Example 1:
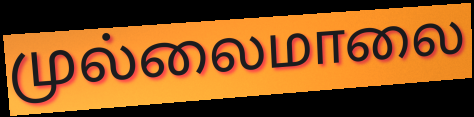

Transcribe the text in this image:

முல்லைமாலை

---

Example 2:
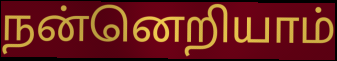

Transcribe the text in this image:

நன்னெறியாம்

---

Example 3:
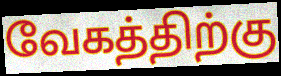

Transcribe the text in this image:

வேகத்திற்கு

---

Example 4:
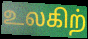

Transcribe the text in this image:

உலகிற்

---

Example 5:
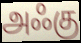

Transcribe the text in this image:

அஃகு